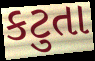
કટુતા